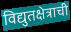
विद्युतक्षेत्राची